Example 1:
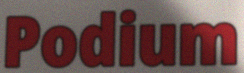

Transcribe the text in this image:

Podium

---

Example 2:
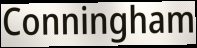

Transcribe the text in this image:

Conningham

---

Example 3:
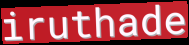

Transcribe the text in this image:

iruthade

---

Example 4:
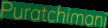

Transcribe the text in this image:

Puratchimani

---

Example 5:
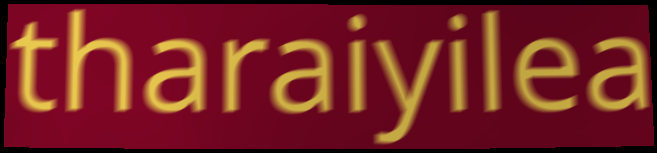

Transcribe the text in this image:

tharaiyilea